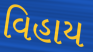
વિહાય